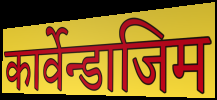
कार्वेन्डाजिम